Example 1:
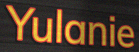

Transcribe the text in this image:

Yulanie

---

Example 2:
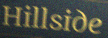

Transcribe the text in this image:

Hillside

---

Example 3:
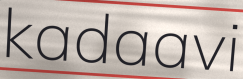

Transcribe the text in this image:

kadaavi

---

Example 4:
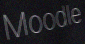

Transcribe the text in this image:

Moodle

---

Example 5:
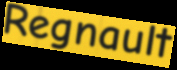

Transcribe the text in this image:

Regnault